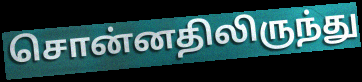
சொன்னதிலிருந்து